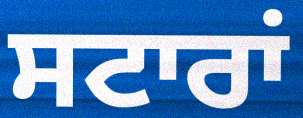
ਸਟਾਰਾਂ